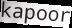
kapoor